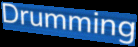
Drumming